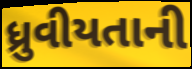
ધ્રુવીયતાની